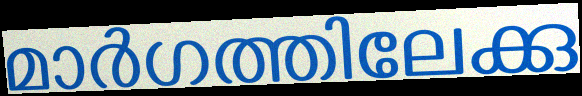
മാർഗത്തിലേക്കു